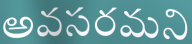
అవసరమని